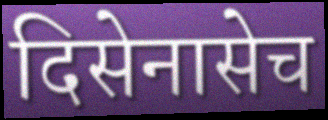
दिसेनासेच